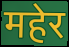
महेर